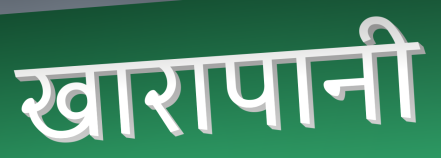
खारापानी